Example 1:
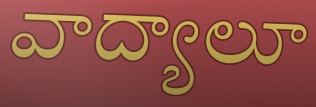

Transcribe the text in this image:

వాద్యాలూ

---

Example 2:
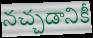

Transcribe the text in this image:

నచ్చడానికీ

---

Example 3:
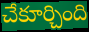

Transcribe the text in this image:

చేకూర్చింది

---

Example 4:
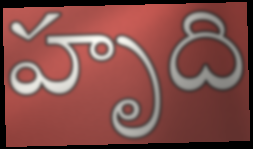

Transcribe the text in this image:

హృది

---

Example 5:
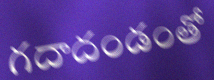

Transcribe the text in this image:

గదాదండంతో